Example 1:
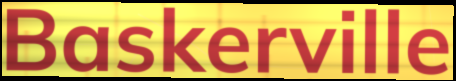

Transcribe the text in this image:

Baskerville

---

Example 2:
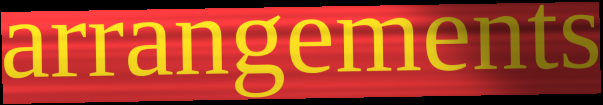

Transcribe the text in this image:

arrangements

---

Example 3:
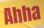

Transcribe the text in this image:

Ahha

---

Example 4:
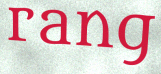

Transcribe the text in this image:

rang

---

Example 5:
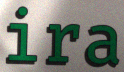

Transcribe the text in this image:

ira